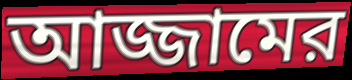
আজ্জামের